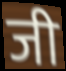
जी